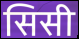
सिसी